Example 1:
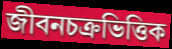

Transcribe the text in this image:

জীবনচক্রভিত্তিক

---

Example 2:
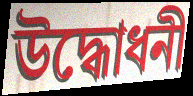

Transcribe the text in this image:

উদ্ধোধনী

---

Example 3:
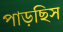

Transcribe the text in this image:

পাড়ছিস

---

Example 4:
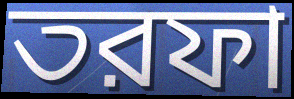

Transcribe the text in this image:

তরফা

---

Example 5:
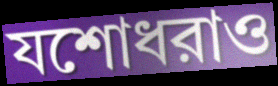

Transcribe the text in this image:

যশোধরাও